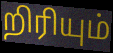
றிரியும்